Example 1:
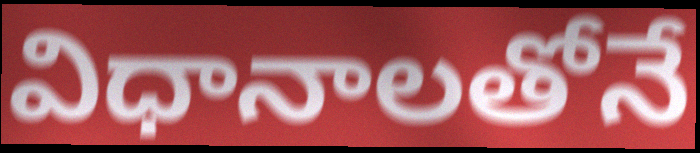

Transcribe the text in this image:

విధానాలతోనే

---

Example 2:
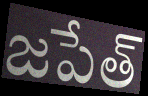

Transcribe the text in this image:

జపేత్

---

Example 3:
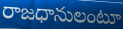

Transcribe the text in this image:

రాజధానులంటూ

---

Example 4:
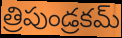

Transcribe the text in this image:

త్రిపుండ్రకమ్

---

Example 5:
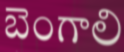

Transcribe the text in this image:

బెంగాలి